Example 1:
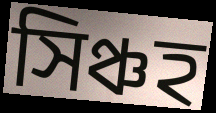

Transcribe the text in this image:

সিঞ্চহ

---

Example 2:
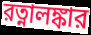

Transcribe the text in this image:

রত্নালঙ্কার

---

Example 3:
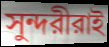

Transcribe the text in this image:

সুন্দরীরাই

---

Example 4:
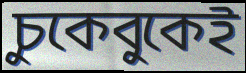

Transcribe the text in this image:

চুকেবুকেই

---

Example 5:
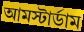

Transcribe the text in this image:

আমস্টার্ডাম